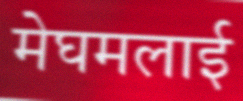
मेघमलाई